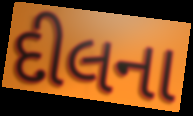
દીલના